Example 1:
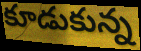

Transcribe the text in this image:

కూడుకున్న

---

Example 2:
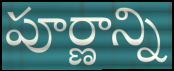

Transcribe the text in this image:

పూర్ణాన్ని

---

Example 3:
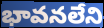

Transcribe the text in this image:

భావనలేని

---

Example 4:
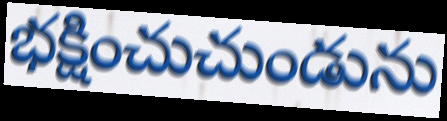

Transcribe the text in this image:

భక్షించుచుండును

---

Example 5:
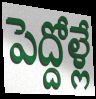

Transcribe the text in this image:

పెద్దోళ్లే